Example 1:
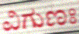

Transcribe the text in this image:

ವಿಗುಣಃ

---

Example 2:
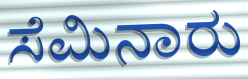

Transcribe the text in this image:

ಸೆಮಿನಾರು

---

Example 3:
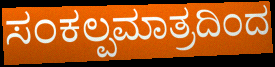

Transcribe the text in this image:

ಸಂಕಲ್ಪಮಾತ್ರದಿಂದ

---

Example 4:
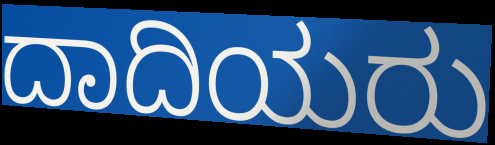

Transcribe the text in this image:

ದಾದಿಯರು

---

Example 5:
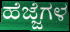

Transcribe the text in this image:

ಹೆಜ್ಜೆಗಳ